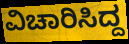
ವಿಚಾರಿಸಿದ್ದ